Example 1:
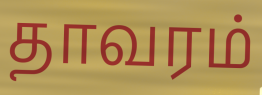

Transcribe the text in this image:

தாவரம்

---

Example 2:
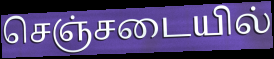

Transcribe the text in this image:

செஞ்சடையில்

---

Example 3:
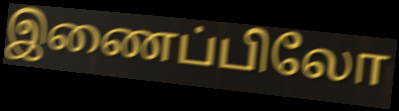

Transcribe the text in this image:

இணைப்பிலோ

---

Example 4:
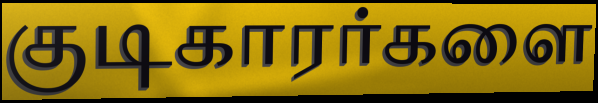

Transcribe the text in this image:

குடிகாரர்களை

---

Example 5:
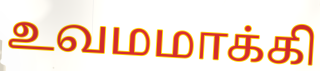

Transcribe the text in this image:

உவமமாக்கி